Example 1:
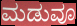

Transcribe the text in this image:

ಮಡುವೂ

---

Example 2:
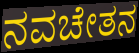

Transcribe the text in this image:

ನವಚೇತನ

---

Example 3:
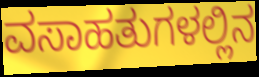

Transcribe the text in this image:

ವಸಾಹತುಗಳಲ್ಲಿನ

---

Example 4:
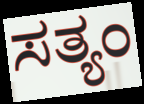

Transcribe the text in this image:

ಸತ್ಯಂ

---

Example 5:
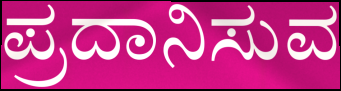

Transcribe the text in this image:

ಪ್ರದಾನಿಸುವ